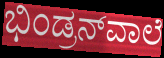
ಭಿಂಡ್ರನ್‌ವಾಲೆ